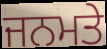
ਜਨਮਤੇ